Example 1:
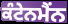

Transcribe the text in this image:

ਕੰਟੇਨਮੈਂਨ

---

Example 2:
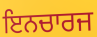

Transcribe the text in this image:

ਇਨਚਾਰਜ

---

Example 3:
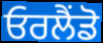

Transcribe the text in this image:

ਓਰਲੈਂਡੋ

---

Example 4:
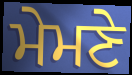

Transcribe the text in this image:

ਮੇਮਣੇ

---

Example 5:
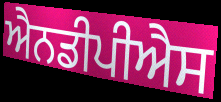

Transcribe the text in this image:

ਐਨਡੀਪੀਐਸ